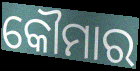
କୌମାର